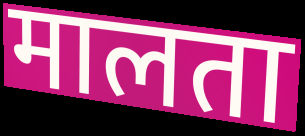
मालता